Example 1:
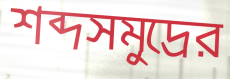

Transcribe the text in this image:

শব্দসমুদ্রের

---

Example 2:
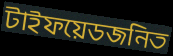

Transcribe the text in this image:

টাইফয়েডজনিত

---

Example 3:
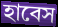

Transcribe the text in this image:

হাবেস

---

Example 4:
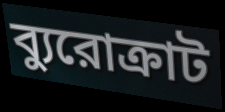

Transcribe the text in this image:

ব্যুরোক্রাট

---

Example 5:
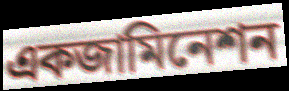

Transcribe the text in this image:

একজামিনেশন